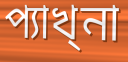
প্যাখ্না